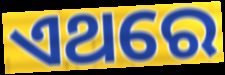
ଏଥରେ